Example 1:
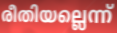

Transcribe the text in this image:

രീതിയല്ലെന്ന്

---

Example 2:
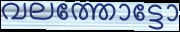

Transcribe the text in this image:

വലത്തോട്ടോ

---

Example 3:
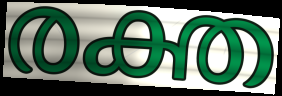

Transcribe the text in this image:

രക്ത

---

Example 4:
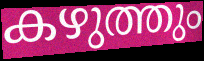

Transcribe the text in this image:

കഴുത്തും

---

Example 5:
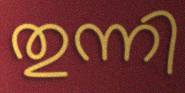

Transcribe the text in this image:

തുന്നി